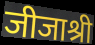
जीजाश्री